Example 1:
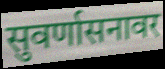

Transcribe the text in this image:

सुवर्णासनावर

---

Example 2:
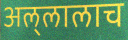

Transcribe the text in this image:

अल्लालाच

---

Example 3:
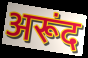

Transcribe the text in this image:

अरूंद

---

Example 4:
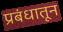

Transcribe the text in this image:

प्रबंधातून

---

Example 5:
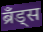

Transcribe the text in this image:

ब्रँड्स